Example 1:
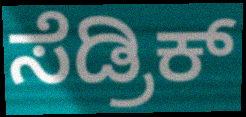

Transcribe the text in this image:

ಸೆಡ್ರಿಕ್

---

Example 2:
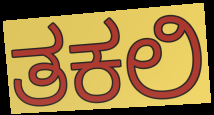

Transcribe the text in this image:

ತಕಲಿ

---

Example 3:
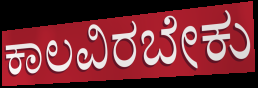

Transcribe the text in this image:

ಕಾಲವಿರಬೇಕು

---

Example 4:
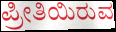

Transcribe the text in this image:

ಪ್ರೀತಿಯಿರುವ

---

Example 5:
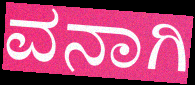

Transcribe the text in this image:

ವನಾಗಿ